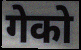
गेको